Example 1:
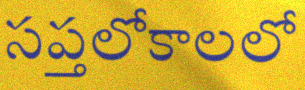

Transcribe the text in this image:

సప్తలోకాలలో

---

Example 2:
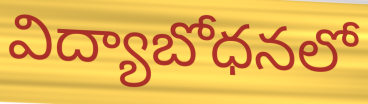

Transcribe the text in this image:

విద్యాబోధనలో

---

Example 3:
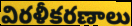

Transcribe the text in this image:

విరళీకరణాలు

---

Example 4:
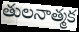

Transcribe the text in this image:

తులనాత్మక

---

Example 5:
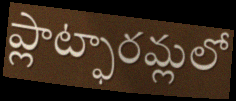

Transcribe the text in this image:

ప్లాట్ఫారమ్లలో